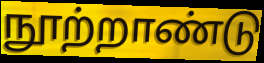
நூற்றாண்டு